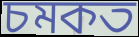
চমকত